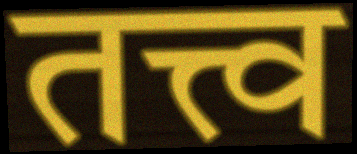
तत्त्व